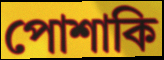
পোশাকি